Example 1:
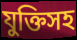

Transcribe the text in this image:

যুক্তিসহ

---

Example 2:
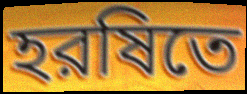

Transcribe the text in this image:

হরষিতে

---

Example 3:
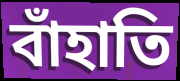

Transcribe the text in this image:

বাঁহাতি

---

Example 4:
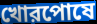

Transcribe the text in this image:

খোরপোষে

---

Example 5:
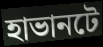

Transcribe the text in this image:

হাভানটে